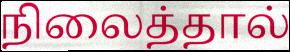
நிலைத்தால்